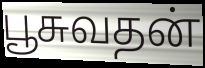
பூசுவதன்